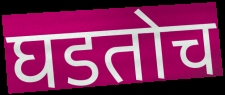
घडतोच